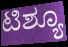
ಟಿಶ್ಯೂ